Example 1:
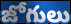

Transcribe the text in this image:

జోగులు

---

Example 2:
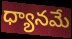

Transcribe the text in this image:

ధ్యానమే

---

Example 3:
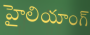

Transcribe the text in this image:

హైలియాంగ్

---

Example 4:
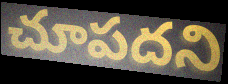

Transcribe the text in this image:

చూపదని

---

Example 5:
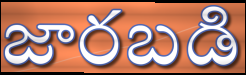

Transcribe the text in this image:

జారబడి